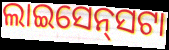
ଲାଇସେନ୍‍ସଟା